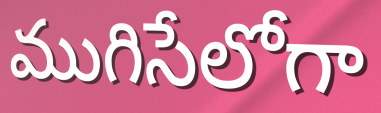
ముగిసేలోగా